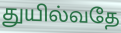
துயில்வதே